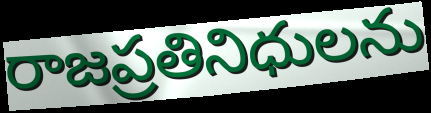
రాజప్రతినిధులను